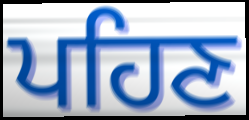
ਪਹਿਣ